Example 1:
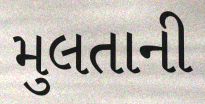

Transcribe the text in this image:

મુલતાની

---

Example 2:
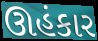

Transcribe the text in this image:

ઊહંકાર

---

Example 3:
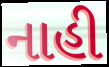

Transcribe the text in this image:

નાહી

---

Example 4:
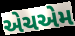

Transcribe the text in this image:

એચએમ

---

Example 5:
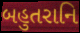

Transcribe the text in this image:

બહુતરાનિ